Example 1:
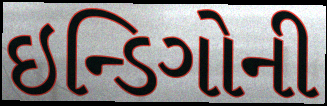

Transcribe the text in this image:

ઇન્ડિગોની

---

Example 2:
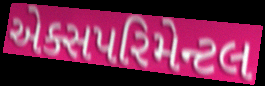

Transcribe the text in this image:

એક્સપરિમેન્ટલ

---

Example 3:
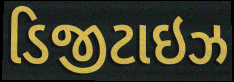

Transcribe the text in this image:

ડિજીટાઇઝ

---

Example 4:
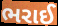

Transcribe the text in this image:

ભરાઈ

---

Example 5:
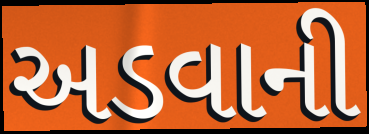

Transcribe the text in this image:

અડવાની